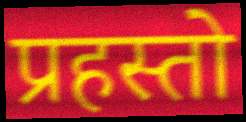
प्रहस्तो